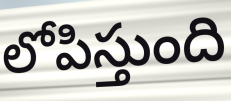
లోపిస్తుంది